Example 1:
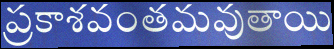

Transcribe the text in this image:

ప్రకాశవంతమవుతాయి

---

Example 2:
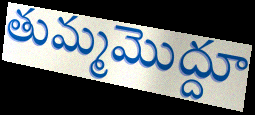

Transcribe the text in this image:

తుమ్మమొద్దూ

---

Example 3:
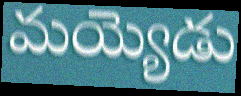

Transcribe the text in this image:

మయ్యెడు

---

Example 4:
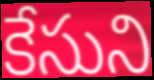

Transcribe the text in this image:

కేసుని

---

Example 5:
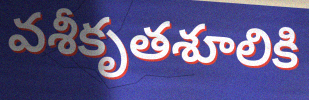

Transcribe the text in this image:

వశీకృతశూలికి